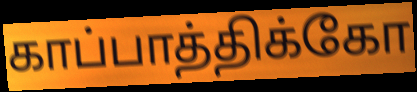
காப்பாத்திக்கோ